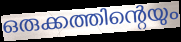
ഒരുക്കത്തിന്റെയും